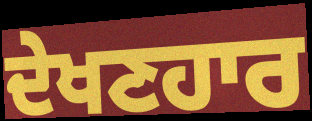
ਦੇਖਣਹਾਰ